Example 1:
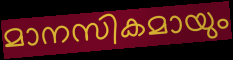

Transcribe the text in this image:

മാനസികമായും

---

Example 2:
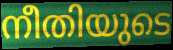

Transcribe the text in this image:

നീതിയുടെ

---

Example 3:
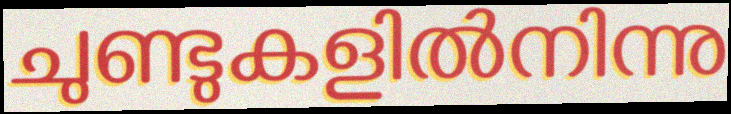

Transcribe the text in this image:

ചുണ്ടുകളിൽനിന്നു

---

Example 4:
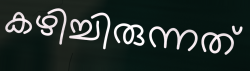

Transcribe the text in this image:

കഴിച്ചിരുന്നത്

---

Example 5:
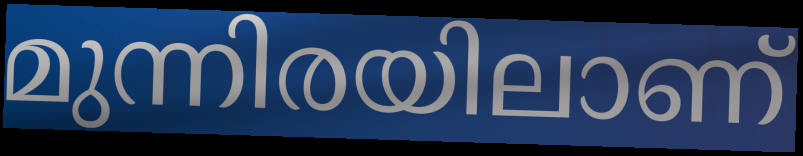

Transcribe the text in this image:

മുന്നിരയിലാണ്